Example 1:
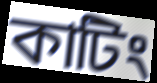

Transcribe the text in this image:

কাটিং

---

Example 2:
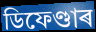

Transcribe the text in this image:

ডিফেণ্ডাৰ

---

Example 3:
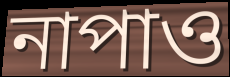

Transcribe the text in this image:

নাপাও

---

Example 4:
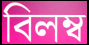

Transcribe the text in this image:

বিলম্ব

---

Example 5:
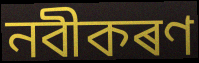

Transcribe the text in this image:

নবীকৰণ